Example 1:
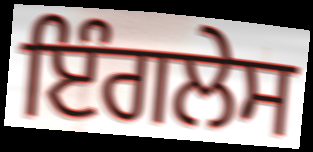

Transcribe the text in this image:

ਇੰਗਲੇਸ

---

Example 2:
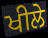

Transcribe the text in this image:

ਖੀਲੇ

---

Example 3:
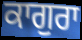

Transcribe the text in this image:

ਕਾਗੁਰਾ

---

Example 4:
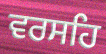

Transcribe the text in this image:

ਵਰਸਹਿ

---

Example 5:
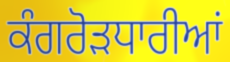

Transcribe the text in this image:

ਕੰਗਰੋੜਧਾਰੀਆਂ